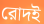
রোদই